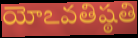
యోఽవతిష్ఠతి